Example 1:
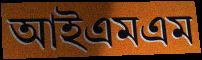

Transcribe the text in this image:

আইএমএম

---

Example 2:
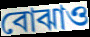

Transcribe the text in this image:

বোঝাও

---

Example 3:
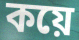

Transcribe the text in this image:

কয়ে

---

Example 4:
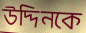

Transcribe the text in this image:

উদ্দিনকে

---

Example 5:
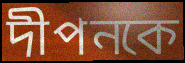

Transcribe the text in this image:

দীপনকে